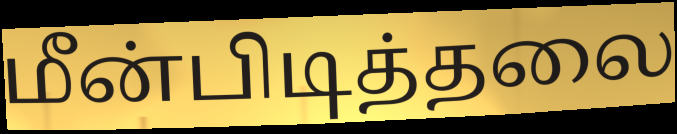
மீன்பிடித்தலை